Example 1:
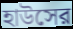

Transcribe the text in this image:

হাউসের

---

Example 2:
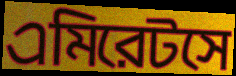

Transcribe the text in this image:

এমিরেটসে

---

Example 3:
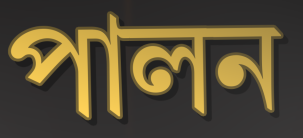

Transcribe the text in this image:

পালন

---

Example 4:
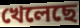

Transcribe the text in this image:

খেলেছে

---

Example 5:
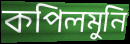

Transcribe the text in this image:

কপিলমুনি